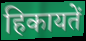
हिकायतें